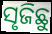
ସୃଜିଛୁ